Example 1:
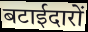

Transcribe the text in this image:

बटाईदारों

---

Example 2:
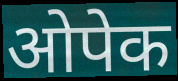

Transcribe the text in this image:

ओपेक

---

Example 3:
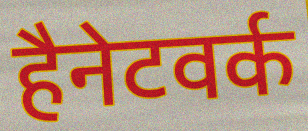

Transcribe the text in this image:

हैनेटवर्क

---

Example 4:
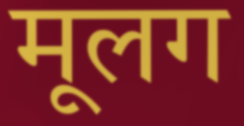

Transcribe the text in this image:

मूलग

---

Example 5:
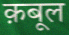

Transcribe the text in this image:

क़बूल